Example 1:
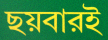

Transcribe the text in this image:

ছয়বারই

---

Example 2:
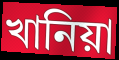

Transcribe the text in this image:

খানিয়া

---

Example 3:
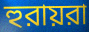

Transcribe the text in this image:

হুরায়রা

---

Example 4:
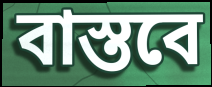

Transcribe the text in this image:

বাস্তবে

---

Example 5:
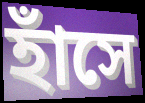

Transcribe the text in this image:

হাঁসে